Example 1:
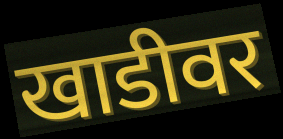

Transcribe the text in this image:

खाडीवर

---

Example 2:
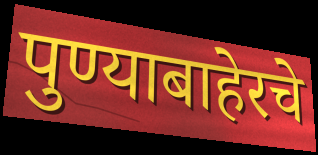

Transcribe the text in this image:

पुण्याबाहेरचे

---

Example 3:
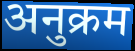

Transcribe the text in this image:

अनुक्रम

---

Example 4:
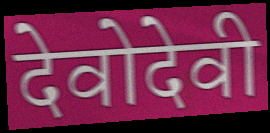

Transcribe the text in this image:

देवोदेवी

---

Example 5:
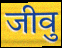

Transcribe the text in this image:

जीवु